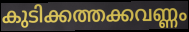
കുടിക്കത്തക്കവണ്ണം